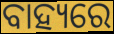
ବାହ୍ୟରେ